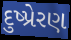
દુષ્પ્રેરણ